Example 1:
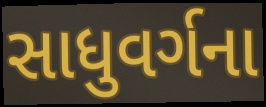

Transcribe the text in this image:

સાધુવર્ગના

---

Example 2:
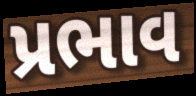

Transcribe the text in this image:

પ્રભાવ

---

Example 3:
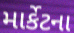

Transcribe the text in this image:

માર્કેટના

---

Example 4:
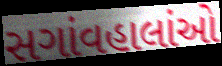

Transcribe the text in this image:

સગાંવહાલાંઓ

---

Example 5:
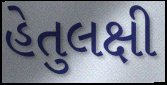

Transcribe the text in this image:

હેતુલક્ષી